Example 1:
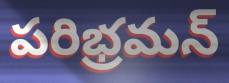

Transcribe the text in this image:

పరిభ్రమన్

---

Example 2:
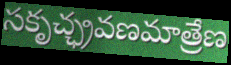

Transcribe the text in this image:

సకృచ్ఛ్రవణమాత్రేణ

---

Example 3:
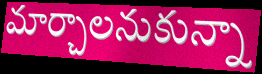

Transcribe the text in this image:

మార్చాలనుకున్నా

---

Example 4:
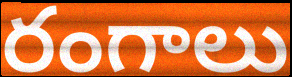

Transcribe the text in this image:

రంగాలు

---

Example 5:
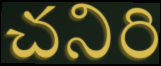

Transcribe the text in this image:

చనిరి